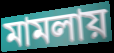
মামলায়